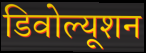
डिवोल्यूशन